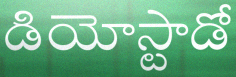
డియోస్టాడో